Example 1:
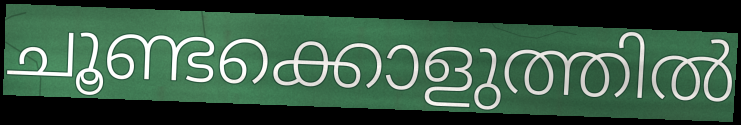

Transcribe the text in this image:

ചൂണ്ടക്കൊളുത്തിൽ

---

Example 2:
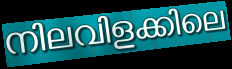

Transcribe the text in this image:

നിലവിളക്കിലെ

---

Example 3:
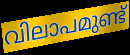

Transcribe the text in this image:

വിലാപമുണ്ട്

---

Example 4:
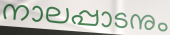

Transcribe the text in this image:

നാലപ്പാടനും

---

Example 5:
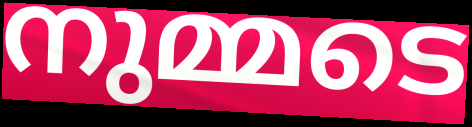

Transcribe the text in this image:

നുമ്മടെ